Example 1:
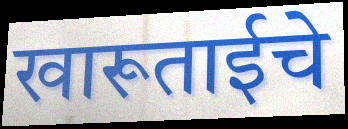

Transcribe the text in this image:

खारूताईचे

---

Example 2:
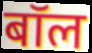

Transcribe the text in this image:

बॉल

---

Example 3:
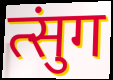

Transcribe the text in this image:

त्सुंग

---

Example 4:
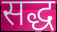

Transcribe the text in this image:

सद्ध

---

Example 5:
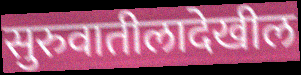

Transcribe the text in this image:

सुरुवातीलादेखील